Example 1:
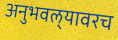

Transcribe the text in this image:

अनुभवल्यावरच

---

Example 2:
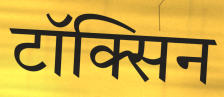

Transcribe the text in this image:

टॉक्सिन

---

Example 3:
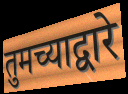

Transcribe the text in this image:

तुमच्याद्वारे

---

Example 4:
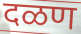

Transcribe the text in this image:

दळण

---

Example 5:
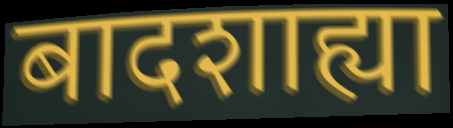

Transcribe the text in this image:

बादशाह्या